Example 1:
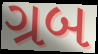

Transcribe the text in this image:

ગ્રબ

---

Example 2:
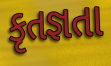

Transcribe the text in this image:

કૃતજ્ઞતા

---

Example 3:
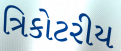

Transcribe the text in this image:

ત્રિકોટરીય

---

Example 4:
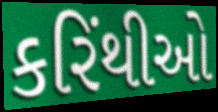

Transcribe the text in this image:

કરિંથીઓ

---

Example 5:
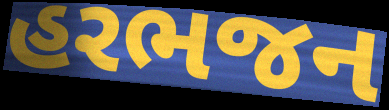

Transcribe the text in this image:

હરભજન